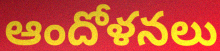
ఆందోళనలు